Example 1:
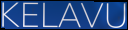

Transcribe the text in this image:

KELAVU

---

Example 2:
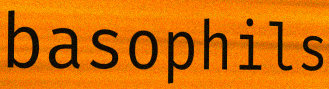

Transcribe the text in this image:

basophils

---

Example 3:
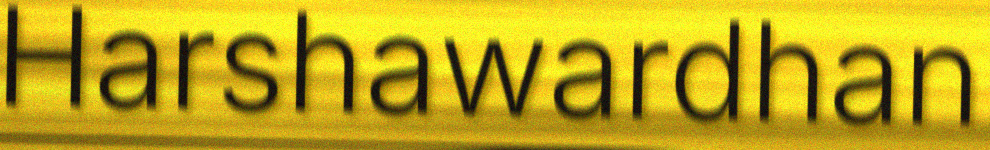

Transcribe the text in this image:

Harshawardhan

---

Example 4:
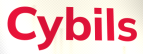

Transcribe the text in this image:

Cybils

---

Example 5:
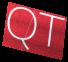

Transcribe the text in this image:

QT